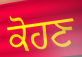
ਕੋਹਣ